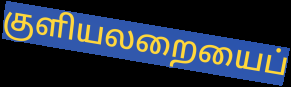
குளியலறையைப்